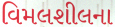
વિમલશીલના